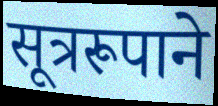
सूत्ररूपाने